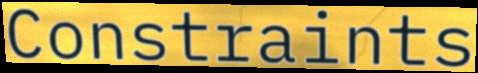
Constraints